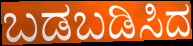
ಬಡಬಡಿಸಿದ